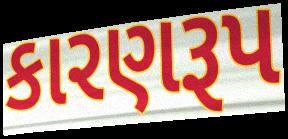
કારણરૂપ